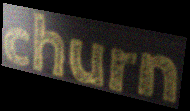
churn